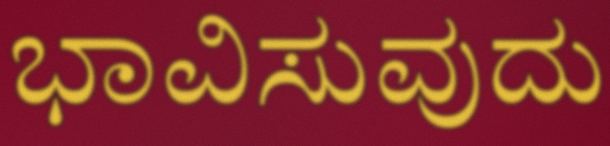
ಭಾವಿಸುವುದು